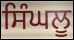
ਸਿੰਘਲੂ